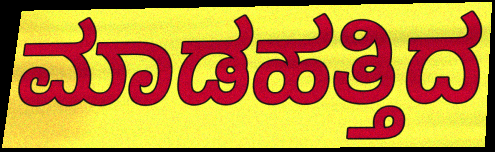
ಮಾಡಹತ್ತಿದ